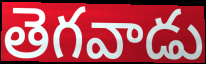
తెగవాడు